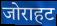
जोराहट